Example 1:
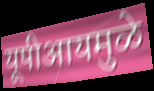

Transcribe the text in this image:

यूपीआयमुळे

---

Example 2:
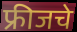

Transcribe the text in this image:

फ्रीजचे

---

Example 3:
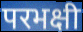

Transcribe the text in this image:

परभक्षी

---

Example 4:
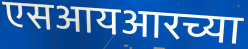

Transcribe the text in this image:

एसआयआरच्या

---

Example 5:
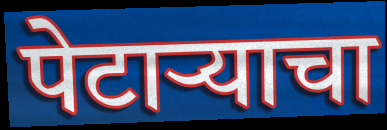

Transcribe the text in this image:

पेटाऱ्याचा